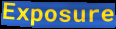
Exposure